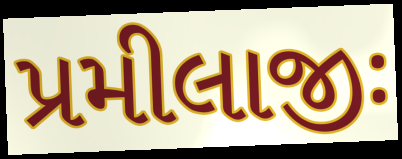
પ્રમીલાજીઃ